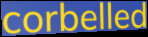
corbelled